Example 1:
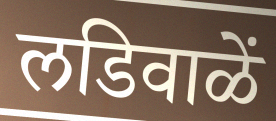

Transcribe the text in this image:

लडिवाळें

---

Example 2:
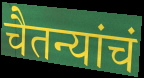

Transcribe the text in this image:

चैतन्यांचं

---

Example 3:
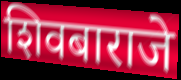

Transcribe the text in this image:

शिवबाराजे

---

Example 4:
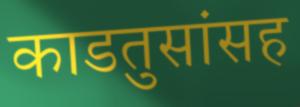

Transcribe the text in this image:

काडतुसांसह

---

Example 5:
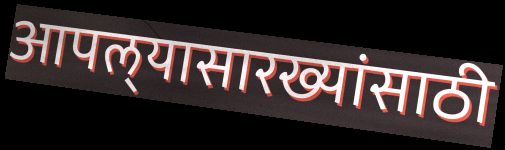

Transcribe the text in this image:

आपल्यासारख्यांसाठी